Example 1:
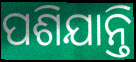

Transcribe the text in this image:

ପଶିଯାନ୍ତି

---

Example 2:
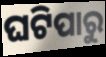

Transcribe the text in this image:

ଘଟିପାରୁ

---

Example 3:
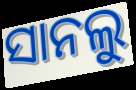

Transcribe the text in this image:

ସାନଲୁ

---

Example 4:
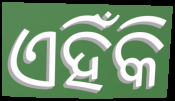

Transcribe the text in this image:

ଏହିଁକି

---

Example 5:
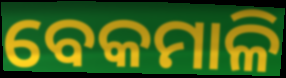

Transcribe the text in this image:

ବେକମାଳି